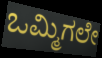
ಒಮ್ಮಿಗಲೇ